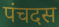
पंचदस